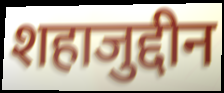
शहाजुद्दीन